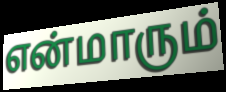
என்மாரும்